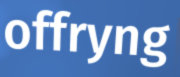
offryng